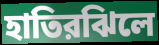
হাতিরঝিলে